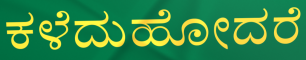
ಕಳೆದುಹೋದರೆ